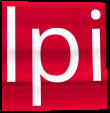
lpi